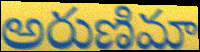
అరుణిమా